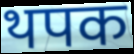
थपक